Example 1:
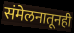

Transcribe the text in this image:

संमेलनातूनही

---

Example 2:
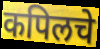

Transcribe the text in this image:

कपिलचे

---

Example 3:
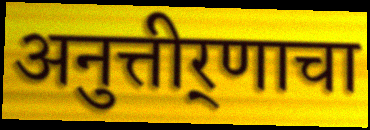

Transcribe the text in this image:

अनुत्तीर्णाचा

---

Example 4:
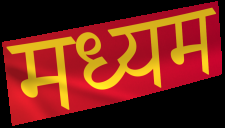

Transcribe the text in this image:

मध्यम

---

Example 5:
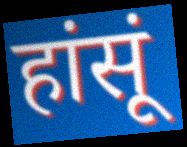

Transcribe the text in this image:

हांसूं